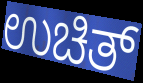
ಉಚಿತ್